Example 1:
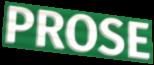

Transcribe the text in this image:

PROSE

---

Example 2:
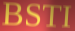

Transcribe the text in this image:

BSTI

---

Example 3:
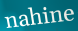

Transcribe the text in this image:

nahine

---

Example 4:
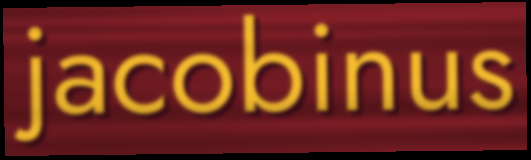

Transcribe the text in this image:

jacobinus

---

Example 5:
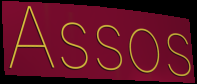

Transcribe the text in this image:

Assos